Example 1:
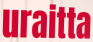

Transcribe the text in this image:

uraitta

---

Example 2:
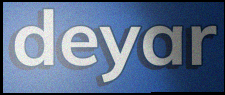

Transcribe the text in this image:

deyar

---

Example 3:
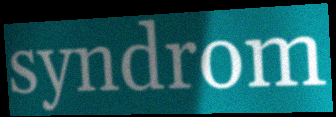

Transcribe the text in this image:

syndrom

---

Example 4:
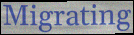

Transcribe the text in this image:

Migrating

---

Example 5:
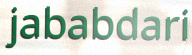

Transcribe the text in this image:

jababdari